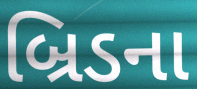
બ્રિડના